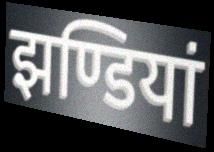
झण्डियां